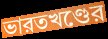
ভারতখণ্ডের